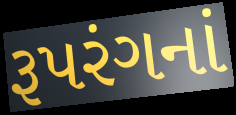
રૂપરંગનાં